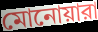
মোনোয়ারা